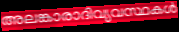
അലങ്കാരാദിവ്യവസ്ഥകൾ